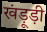
खंड़ूड़ी